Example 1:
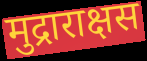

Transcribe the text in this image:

मुद्राराक्षस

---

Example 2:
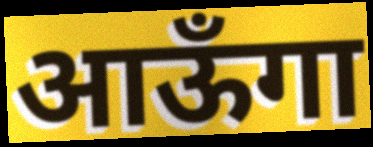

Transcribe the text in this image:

आऊँगा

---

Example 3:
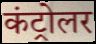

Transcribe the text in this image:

कंट्रोलर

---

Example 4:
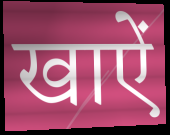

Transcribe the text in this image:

खाऐं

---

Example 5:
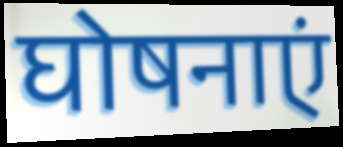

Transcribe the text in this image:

घोषनाएं